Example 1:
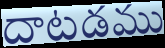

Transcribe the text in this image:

దాటడము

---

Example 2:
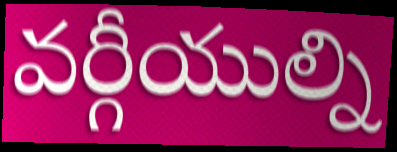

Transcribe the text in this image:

వర్గీయుల్ని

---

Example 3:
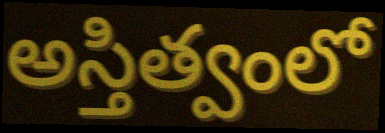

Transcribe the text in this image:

అస్తిత్వంలో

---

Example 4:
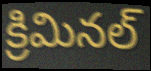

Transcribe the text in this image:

క్రిమినల్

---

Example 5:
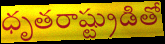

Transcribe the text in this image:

ధృతరాష్ట్రుడితో